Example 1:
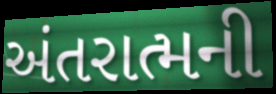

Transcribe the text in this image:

અંતરાત્મની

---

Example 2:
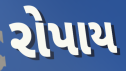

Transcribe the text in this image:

રોપાય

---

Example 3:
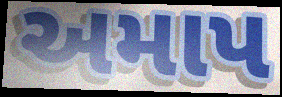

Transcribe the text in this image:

અમાપ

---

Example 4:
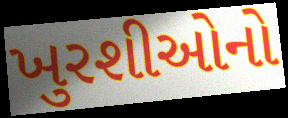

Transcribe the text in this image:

ખુરશીઓનો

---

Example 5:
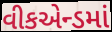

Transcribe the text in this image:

વીકએન્ડમાં